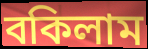
বকিলাম